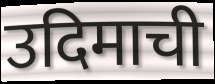
उदिमाची